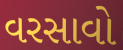
વરસાવો